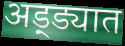
अड्ड्यात